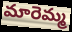
మారెమ్మ